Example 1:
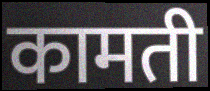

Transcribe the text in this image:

कामती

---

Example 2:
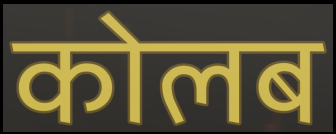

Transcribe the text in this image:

कोलब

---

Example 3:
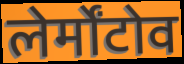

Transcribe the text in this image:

लेर्मोंटोव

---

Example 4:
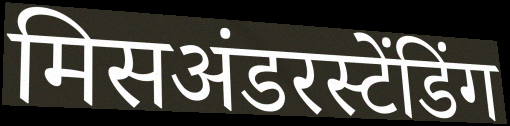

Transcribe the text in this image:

मिसअंडरस्टेंडिंग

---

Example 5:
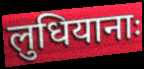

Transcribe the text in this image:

लुधियानाः